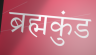
ब्रह्मकुंड